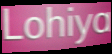
Lohiya